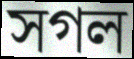
সগল